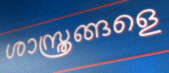
ശാസ്ത്രങ്ങളെ